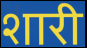
शारी